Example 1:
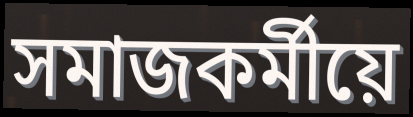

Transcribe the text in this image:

সমাজকৰ্মীয়ে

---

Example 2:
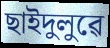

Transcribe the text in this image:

ছাইদুলুৱে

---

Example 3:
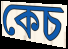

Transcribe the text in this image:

কেচ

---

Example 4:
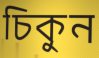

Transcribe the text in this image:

চিকুন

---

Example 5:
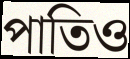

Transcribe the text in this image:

পাতিও